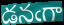
డనఁగా